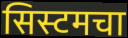
सिस्टमचा